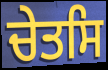
ਚੇਤਸਿ